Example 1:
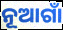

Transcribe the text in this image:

ନୂଆଗାଁ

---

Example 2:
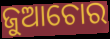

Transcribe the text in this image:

ଜୁଆଚୋର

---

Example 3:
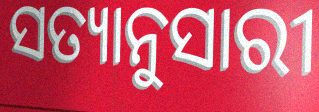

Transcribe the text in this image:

ସତ୍ୟାନୁସାରୀ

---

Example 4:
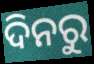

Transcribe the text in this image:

ଦିନରୁ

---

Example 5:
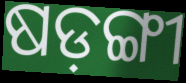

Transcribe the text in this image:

ଷଡ଼ଙ୍ଗୀ